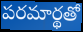
పరమార్థతో